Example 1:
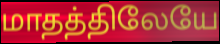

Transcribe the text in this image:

மாதத்திலேயே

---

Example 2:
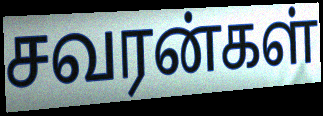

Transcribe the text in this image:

சவரன்கள்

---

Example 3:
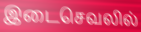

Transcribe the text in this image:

இடைசெவலில்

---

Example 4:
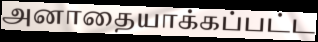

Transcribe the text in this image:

அனாதையாக்கப்பட்ட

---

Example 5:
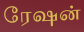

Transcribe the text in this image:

ரேஷன்